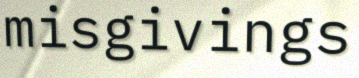
misgivings